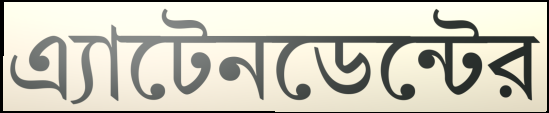
এ্যাটেনডেন্টের